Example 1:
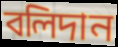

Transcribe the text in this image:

বলিদান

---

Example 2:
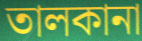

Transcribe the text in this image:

তালকানা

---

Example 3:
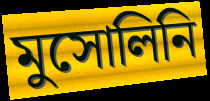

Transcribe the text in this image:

মুসোলিনি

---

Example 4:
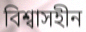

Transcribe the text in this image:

বিশ্বাসহীন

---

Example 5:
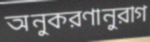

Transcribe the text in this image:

অনুকরণানুরাগ